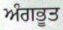
ਅੰਗਭੂਤ